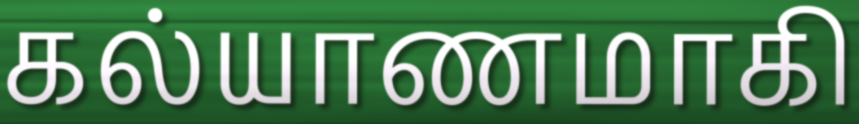
கல்யாணமாகி